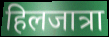
हिलजात्रा